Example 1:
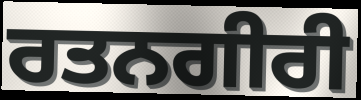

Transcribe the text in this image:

ਰਤਨਗੀਰੀ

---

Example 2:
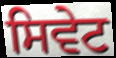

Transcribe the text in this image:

ਸਿਵੇਟ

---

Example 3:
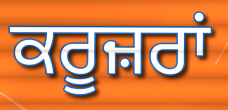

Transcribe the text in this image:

ਕਰੂਜ਼ਰਾਂ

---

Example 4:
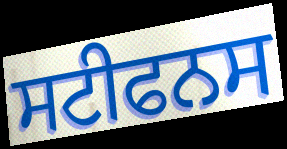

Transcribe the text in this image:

ਸਟੀਫਨਸ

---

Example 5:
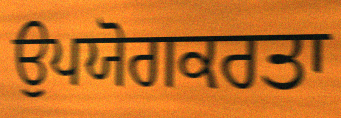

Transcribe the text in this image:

ਉਪਯੋਗਕਰਤਾ